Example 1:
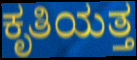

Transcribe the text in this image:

ಕೃತಿಯತ್ತ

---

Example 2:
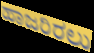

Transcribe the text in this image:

ಹಾಜರಿರಲು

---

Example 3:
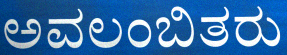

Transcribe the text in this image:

ಅವಲಂಬಿತರು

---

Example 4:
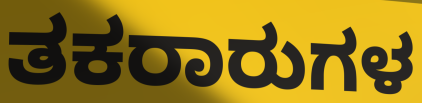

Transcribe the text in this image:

ತಕರಾರುಗಳ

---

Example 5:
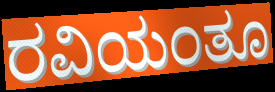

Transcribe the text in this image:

ರವಿಯಂತೂ